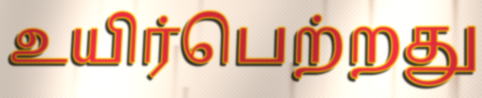
உயிர்பெற்றது